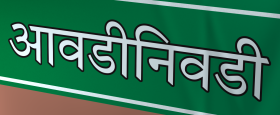
आवडीनिवडी